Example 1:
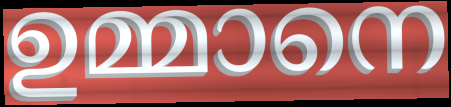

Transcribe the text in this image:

ഉമ്മാനെ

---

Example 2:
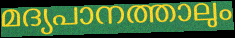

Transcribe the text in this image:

മദ്യപാനത്താലും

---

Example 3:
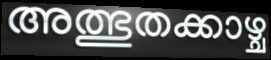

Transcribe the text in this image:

അത്ഭുതക്കാഴ്ച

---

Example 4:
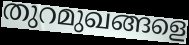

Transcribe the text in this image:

തുറമുഖങ്ങളെ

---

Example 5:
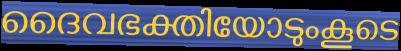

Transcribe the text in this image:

ദൈവഭക്തിയോടുംകൂടെ